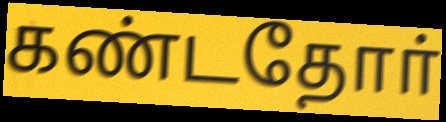
கண்டதோர்